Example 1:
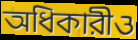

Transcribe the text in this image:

অধিকারীও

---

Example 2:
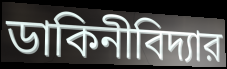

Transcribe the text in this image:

ডাকিনীবিদ্যার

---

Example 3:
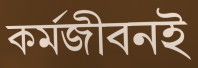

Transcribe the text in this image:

কর্মজীবনই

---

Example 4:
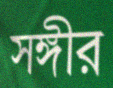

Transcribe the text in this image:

সঙ্গীর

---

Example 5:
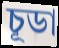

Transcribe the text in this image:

চূডা